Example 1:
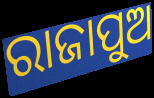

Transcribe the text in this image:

ରାଜାପୁଅ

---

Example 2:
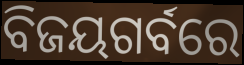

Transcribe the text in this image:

ବିଜୟଗର୍ବରେ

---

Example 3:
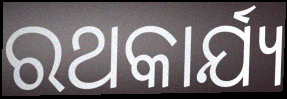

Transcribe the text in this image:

ରଥକାର୍ଯ୍ୟ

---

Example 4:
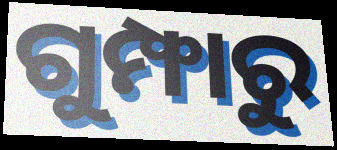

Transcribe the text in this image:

ଗୁମ୍ଫାରୁ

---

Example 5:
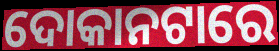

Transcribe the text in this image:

ଦୋକାନଟାରେ